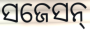
ସଜେସନ୍